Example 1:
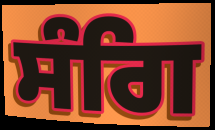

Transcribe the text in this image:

ਸੰਗਿ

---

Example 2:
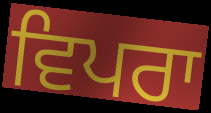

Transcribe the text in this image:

ਵਿਪਰਾ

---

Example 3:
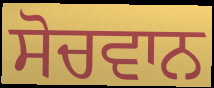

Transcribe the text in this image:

ਸੋਚਵਾਨ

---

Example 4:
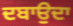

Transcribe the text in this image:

ਦਬਾਉਦਾ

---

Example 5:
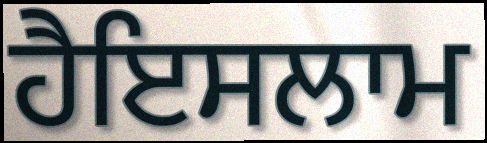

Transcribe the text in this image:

ਹੈਇਸਲਾਮ